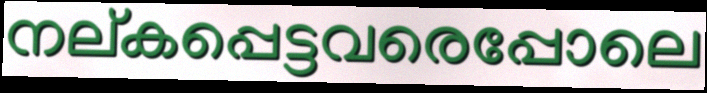
നല്കപ്പെട്ടവരെപ്പോലെ